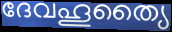
ദേവഹൂത്യൈ